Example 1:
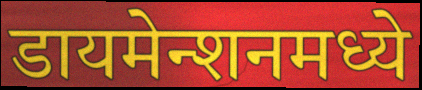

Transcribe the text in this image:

डायमेन्शनमध्ये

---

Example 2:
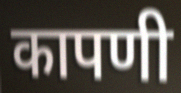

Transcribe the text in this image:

कापणी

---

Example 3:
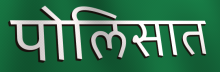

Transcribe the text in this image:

पोलिसात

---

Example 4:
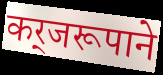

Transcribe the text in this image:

कर्जरूपाने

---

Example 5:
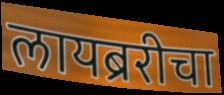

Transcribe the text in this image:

लायब्ररीचा